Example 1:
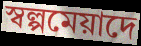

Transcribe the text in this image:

স্বল্পমেয়াদে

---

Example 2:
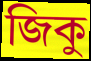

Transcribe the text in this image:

জিকু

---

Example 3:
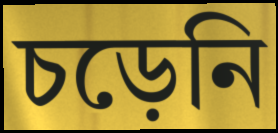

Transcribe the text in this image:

চড়েনি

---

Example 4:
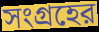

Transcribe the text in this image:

সংগ্রহের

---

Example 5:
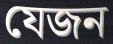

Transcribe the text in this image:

যেজন